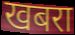
खबरा